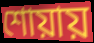
শোয়ায়